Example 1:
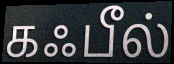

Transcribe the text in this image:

கஃபீல்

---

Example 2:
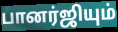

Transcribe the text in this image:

பானர்ஜியும்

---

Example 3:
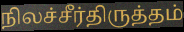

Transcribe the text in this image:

நிலச்சீர்திருத்தம்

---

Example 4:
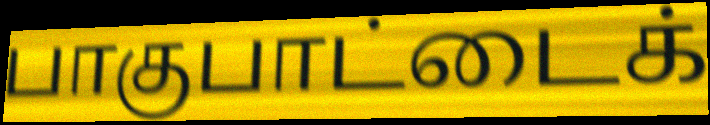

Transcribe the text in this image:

பாகுபாட்டைக்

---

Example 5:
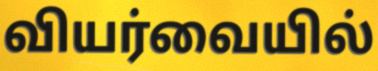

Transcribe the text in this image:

வியர்வையில்